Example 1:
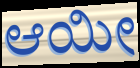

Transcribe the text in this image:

ಆಯೀ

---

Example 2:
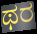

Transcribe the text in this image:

ಥರ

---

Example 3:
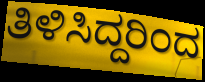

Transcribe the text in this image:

ತಿಳಿಸಿದ್ದರಿಂದ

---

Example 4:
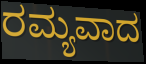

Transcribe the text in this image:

ರಮ್ಯವಾದ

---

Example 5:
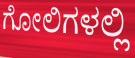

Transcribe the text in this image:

ಗೋಲಿಗಳಲ್ಲಿ